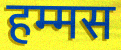
हम्मस